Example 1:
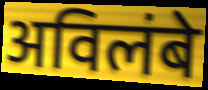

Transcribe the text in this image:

अविलंबे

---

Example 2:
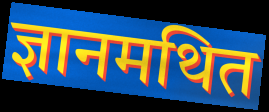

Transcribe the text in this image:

ज्ञानमथित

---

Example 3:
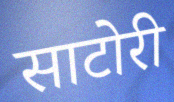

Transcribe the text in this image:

साटोरी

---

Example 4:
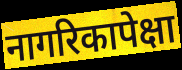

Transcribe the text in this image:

नागरिकापेक्षा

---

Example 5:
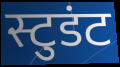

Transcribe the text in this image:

स्टुडंट